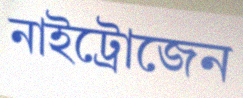
নাইট্রোজেন